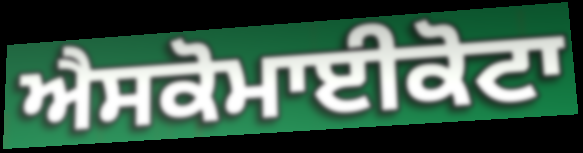
ਐਸਕੋਮਾਈਕੋਟਾ